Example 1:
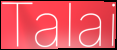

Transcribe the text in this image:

Talai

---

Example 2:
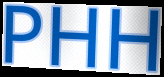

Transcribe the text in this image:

PHH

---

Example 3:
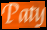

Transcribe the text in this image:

Paty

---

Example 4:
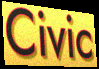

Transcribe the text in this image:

Civic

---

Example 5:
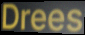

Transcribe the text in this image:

Drees